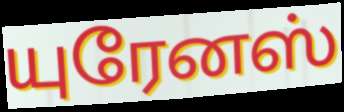
யுரேனஸ்